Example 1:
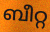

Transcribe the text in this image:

ബീറ്റ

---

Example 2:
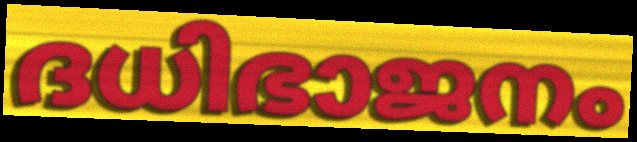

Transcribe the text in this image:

ദധിഭാജനം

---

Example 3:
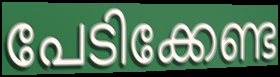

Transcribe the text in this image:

പേടിക്കേണ്ട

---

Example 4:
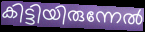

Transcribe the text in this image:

കിട്ടിയിരുന്നേൽ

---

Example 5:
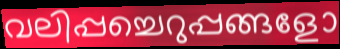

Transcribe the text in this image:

വലിപ്പച്ചെറുപ്പങ്ങളോ